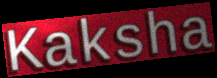
Kaksha